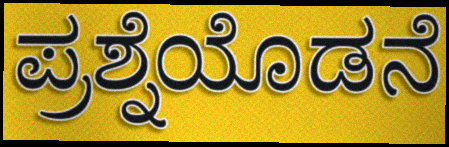
ಪ್ರಶ್ನೆಯೊಡನೆ